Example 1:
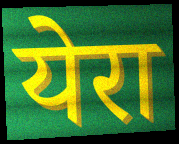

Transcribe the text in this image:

येरा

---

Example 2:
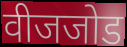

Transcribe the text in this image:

वीजजोड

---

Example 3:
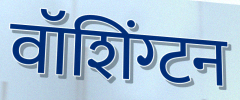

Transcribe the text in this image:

वॉशिंग्टन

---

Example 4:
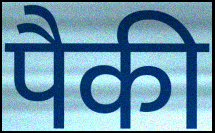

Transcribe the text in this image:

पैकी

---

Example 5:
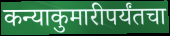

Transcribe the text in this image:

कन्याकुमारीपर्यंतचा